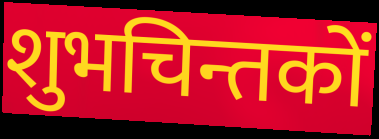
शुभचिन्तकों